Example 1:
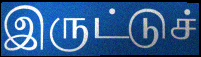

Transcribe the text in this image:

இருட்டுச்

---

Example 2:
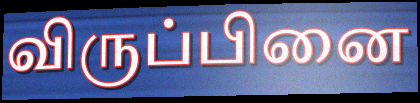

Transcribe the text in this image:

விருப்பினை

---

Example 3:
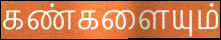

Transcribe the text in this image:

கண்களையும்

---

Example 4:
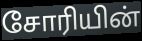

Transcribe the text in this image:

சோரியின்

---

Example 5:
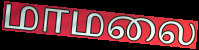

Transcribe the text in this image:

மாமலை